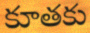
కూతకు